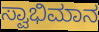
ಸ್ವಾಭಿಮಾನ